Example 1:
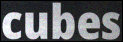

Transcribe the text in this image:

cubes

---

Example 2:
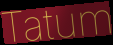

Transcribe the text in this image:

Tatum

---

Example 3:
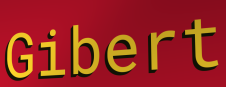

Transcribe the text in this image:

Gibert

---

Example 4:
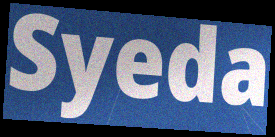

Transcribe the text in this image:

Syeda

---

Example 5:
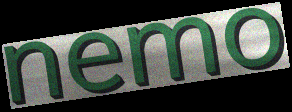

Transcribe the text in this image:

nemo